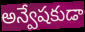
అన్వేషకుడా